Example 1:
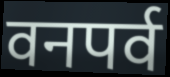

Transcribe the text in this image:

वनपर्व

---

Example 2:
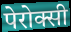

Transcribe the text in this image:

पेरोक्सी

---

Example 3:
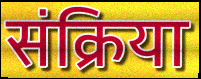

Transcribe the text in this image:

संक्रिया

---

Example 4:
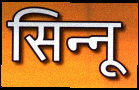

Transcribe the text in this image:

सिन्नू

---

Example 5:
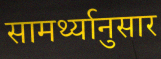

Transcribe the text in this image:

सामर्थ्यानुसार